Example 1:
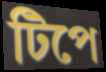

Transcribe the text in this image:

টিপে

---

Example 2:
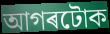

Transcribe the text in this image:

আগৰটোক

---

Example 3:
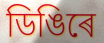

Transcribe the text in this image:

ডিঙিৰে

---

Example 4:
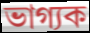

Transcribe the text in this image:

ভাগ্যক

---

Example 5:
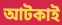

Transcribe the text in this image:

আটকাই